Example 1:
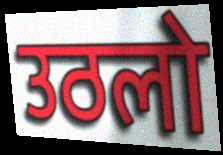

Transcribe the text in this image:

उठलो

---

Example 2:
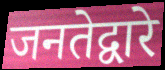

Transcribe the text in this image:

जनतेद्वारे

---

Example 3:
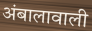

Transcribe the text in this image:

अंबालावाली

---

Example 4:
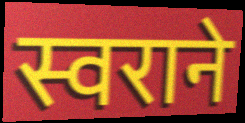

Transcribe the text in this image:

स्वराने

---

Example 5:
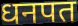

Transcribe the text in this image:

धनपत